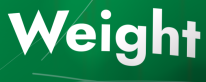
Weight